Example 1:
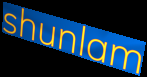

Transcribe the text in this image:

shunlam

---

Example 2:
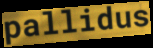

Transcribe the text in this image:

pallidus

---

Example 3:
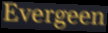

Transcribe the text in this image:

Evergeen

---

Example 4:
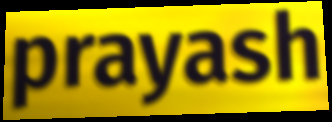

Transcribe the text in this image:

prayash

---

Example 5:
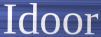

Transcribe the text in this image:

Idoor